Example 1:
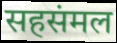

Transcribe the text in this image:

सहसंमल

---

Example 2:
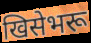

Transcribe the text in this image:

खिसेभरू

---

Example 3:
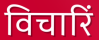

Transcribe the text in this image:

विचारिं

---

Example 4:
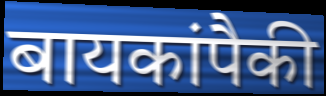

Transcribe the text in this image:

बायकांपैकी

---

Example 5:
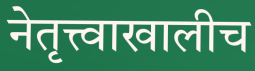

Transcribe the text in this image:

नेतृत्त्वाखालीच